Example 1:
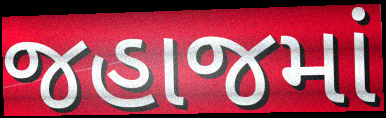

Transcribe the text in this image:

જહાજમાં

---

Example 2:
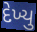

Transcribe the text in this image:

દેખ્યુ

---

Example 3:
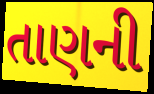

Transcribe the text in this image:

તાણની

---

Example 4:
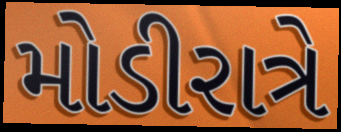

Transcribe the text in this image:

મોડીરાત્રે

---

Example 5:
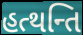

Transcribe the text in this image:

હત્થન્તિ